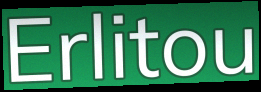
Erlitou